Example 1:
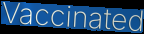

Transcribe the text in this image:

Vaccinated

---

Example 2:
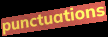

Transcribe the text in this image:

punctuations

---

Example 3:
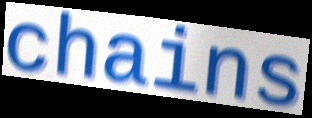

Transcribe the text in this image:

chains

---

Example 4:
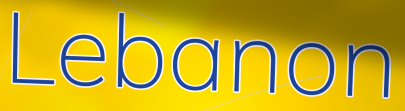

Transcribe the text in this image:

Lebanon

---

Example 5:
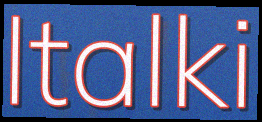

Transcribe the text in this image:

Italki